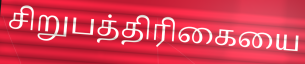
சிறுபத்திரிகையை